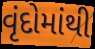
વૃંદોમાંથી